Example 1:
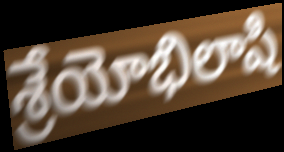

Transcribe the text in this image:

శ్రేయోభిలాషి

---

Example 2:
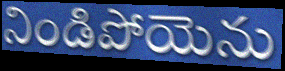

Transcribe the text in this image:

నిండిపోయెను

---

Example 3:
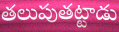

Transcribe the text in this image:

తలుపుతట్టాడు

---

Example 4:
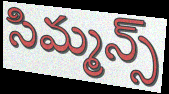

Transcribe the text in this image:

సిమ్మన్స్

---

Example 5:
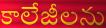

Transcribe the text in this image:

కాలేజీలను